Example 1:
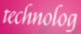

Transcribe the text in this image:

technolog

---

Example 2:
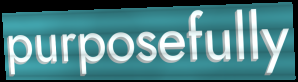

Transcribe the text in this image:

purposefully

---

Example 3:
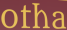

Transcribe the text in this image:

otha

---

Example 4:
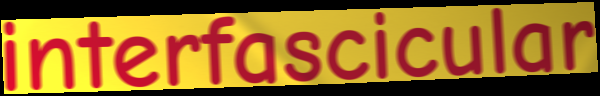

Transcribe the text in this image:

interfascicular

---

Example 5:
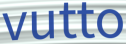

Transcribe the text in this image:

vutto